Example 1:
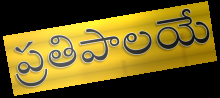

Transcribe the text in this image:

ప్రతిపాలయే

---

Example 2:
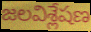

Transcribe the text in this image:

జలవిశ్లేషణ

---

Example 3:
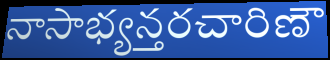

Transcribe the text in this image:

నాసాభ్యన్తరచారిణౌ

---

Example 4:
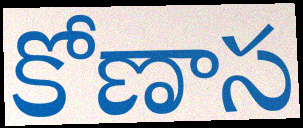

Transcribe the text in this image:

కోణాస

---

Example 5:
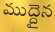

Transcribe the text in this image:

ముద్దైన